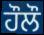
ਹੌਲੌ